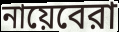
নায়েবেরা